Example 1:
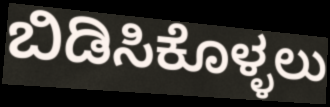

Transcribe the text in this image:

ಬಿಡಿಸಿಕೊಳ್ಳಲು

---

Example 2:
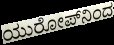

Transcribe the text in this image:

ಯುರೋಪ್‌ನಿಂದ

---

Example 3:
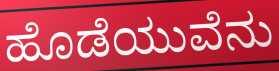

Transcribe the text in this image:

ಹೊಡೆಯುವೆನು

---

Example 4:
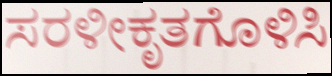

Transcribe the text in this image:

ಸರಳೀಕೃತಗೊಳಿಸಿ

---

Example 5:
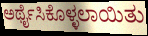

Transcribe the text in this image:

ಅರ್ಥೈಸಿಕೊಳ್ಳಲಾಯಿತು